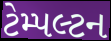
ટેમ્પલ્ટન